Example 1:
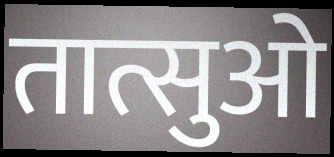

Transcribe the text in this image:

तात्सुओ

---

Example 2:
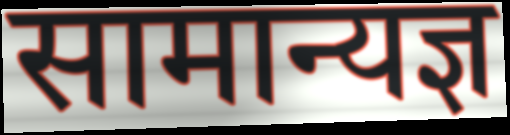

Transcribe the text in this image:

सामान्यज्ञ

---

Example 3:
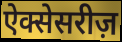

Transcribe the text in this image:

ऐक्सेसरीज़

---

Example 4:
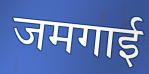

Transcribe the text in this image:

जमगाई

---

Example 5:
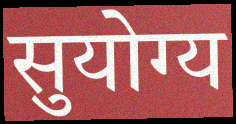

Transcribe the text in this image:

सुयोग्य